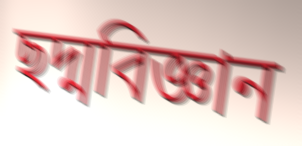
ছদ্মবিজ্ঞান